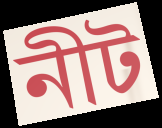
নীট